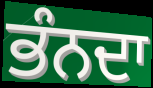
ਭੰਨਦਾ